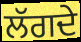
ਲੱਗਦੇ